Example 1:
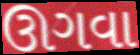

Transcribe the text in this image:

ઊગવા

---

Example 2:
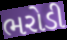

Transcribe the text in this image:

ભરોડી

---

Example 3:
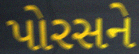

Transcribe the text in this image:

પોરસને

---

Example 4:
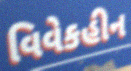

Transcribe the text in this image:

વિવેકહીન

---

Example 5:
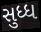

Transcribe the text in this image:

સુધ્ધ